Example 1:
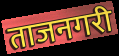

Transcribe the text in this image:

ताजनगरी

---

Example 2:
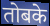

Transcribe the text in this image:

तोबके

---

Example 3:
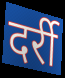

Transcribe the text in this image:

दर्री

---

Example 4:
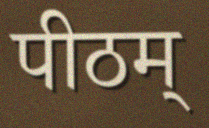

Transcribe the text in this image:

पीठम्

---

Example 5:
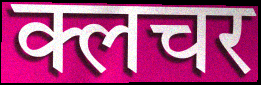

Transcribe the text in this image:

क्लचर